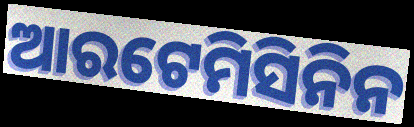
ଆରଟେମିସିନିନ